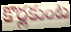
కొర్లకుంట